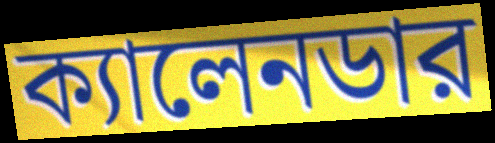
ক্যালেনডার